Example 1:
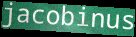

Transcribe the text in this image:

jacobinus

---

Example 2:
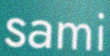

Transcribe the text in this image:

sami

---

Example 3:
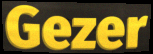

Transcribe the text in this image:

Gezer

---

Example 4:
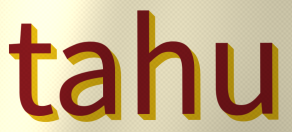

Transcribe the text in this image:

tahu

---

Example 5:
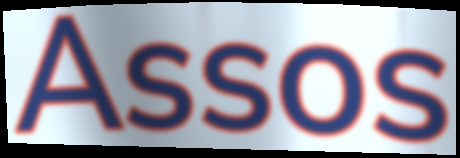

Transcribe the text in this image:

Assos